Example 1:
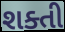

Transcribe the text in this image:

શક્તી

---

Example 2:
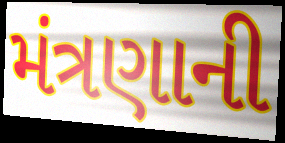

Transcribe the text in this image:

મંત્રણાની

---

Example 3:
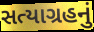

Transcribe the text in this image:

સત્યાગ્રહનું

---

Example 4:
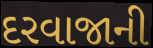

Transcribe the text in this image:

દરવાજાની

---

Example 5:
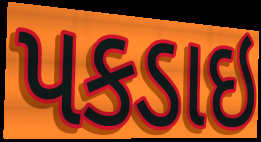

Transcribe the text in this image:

પકડાઇ